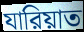
যারিয়াত